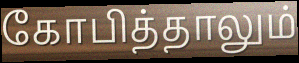
கோபித்தாலும்